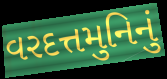
વરદત્તમુનિનું